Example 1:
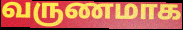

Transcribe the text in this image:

வருணமாக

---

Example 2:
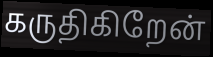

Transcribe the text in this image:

கருதிகிறேன்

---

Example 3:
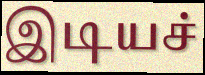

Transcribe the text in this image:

இடியச்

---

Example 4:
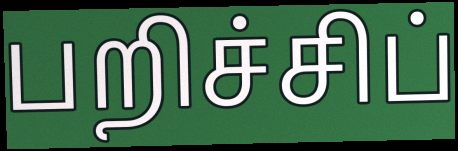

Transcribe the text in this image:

பறிச்சிப்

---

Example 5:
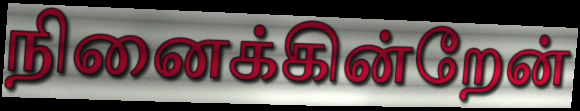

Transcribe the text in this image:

நினைக்கின்றேன்